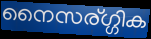
നൈസര്ഗ്ഗിക